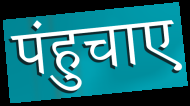
पंहुचाए